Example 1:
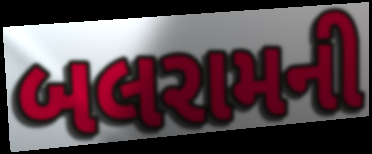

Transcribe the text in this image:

બલરામની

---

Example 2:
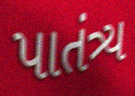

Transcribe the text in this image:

પાતંત્ર્ય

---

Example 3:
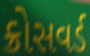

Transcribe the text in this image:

ક્રોસવર્ડ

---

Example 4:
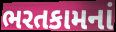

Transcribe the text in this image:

ભરતકામનાં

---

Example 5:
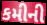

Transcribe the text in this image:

કમીની